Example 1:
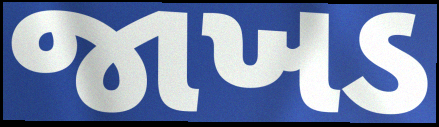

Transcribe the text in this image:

જાખડ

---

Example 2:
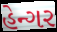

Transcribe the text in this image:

હેન્ગર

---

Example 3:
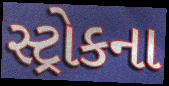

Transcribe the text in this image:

સ્ટ્રોકના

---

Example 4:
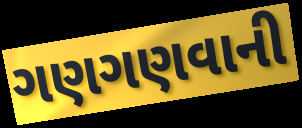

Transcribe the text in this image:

ગણગણવાની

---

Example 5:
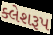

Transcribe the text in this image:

ક્લેશરૂપ